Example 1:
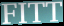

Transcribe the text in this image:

FITT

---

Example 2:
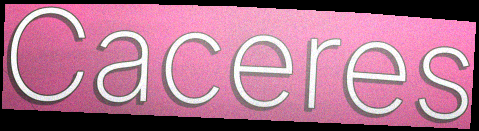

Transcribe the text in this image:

Caceres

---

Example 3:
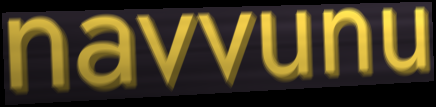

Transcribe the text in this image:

navvunu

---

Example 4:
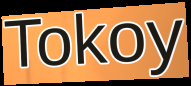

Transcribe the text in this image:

Tokoy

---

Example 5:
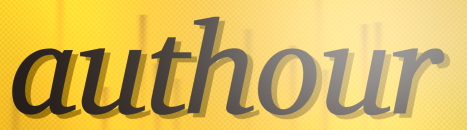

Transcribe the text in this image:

authour